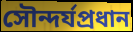
সৌন্দর্যপ্রধান